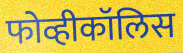
फोव्हीकॉलिस